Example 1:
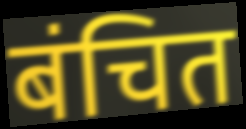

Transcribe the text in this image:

बंचित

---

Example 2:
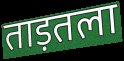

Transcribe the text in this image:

ताड़तला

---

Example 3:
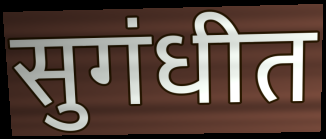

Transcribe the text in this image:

सुगंधीत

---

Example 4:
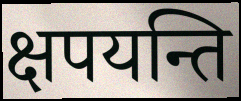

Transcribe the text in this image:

क्षपयन्ति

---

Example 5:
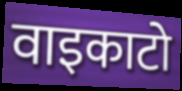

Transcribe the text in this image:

वाइकाटो